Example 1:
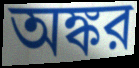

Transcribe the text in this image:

অঙ্কর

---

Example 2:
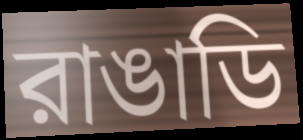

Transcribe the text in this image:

রাঙাডি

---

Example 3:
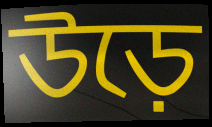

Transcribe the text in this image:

উড়ে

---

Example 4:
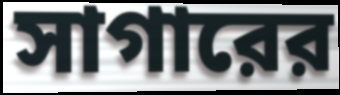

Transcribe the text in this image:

সাগারের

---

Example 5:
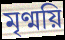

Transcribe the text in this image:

মৃণ্ময়ি